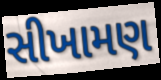
સીખામણ